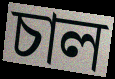
চাল